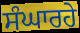
ਸੰਘਾਰਹੇ